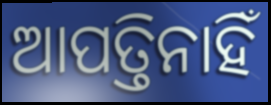
ଆପତ୍ତିନାହିଁ